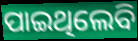
ପାଇଥିଲେବି